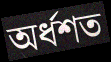
অর্ধশত